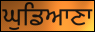
ਘੁਡਿਆਣਾ